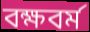
বক্ষবর্ম